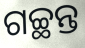
ଗଚ୍ଛନ୍ତ